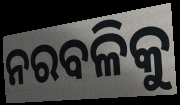
ନରବଳିକୁ